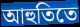
আহুতিতে